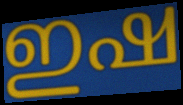
ഇഷ